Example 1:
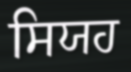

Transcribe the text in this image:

ਸਿਯਹ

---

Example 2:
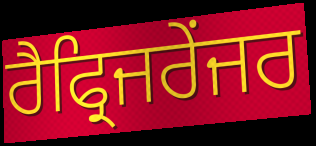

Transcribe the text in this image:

ਰੈਫ੍ਰਿਜਰੇਂਜਰ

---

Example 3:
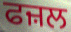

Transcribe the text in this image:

ਫਜ਼ਲ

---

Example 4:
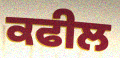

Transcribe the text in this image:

ਕਫੀਲ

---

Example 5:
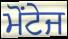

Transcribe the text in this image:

ਮੋਂਟੇਜ